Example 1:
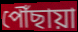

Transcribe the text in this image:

পৌঁছায়া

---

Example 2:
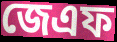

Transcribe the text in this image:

জেএফ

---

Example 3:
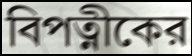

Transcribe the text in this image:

বিপত্নীকের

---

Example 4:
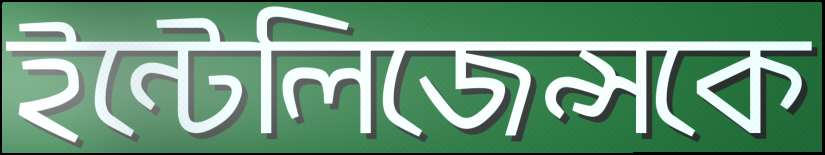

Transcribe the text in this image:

ইন্টেলিজেন্সকে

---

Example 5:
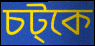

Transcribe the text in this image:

চট্‌কে